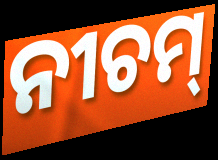
ନୀଚମ୍